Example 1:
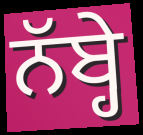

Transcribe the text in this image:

ਨੱਬ੍ਹੇ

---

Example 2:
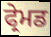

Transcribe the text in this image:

ਫ੍ਰੇਮਡ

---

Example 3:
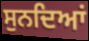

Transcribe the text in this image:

ਸੁਨਦਿਆਂ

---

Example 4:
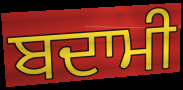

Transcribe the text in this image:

ਬਦਾਮੀ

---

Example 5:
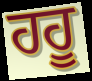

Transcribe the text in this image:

ਹਹੂ